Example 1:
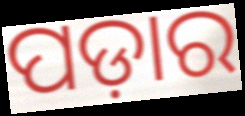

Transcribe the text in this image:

ପଡ଼ାର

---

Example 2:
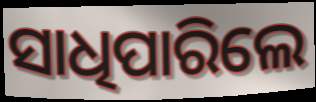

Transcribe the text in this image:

ସାଧିପାରିଲେ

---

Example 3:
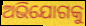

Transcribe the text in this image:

ଅଭିଯୋଗକୁ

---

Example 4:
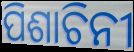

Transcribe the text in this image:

ପିଶାଚିନୀ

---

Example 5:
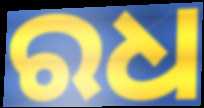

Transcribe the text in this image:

ରଧ